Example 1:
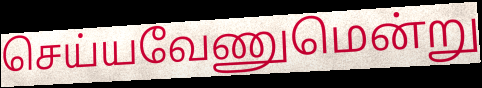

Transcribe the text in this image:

செய்யவேணுமென்று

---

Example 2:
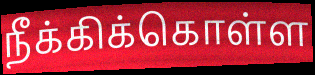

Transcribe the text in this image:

நீக்கிக்கொள்ள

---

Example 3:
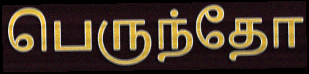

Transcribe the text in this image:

பெருந்தோ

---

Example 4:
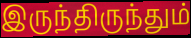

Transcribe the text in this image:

இருந்திருந்தும்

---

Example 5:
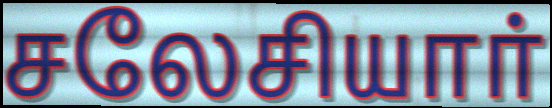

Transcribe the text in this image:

சலேசியார்